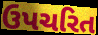
ઉપચરિત